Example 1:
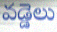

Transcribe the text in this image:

వడ్డెలు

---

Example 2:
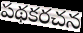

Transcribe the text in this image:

పథకరచన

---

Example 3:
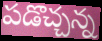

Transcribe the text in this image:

పడొచ్చన్న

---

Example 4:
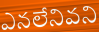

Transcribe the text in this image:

ఎనలేనివని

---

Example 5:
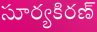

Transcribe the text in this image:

సూర్యకిరణ్